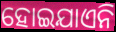
ହୋଇଯାଏନି